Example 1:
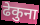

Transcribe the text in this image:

ढेकुना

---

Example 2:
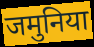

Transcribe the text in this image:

जमुनिया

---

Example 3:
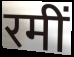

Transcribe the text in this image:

रमीं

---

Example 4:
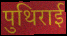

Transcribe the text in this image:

पुथिराई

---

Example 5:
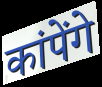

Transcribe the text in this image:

कांपेंगे